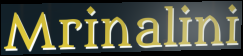
Mrinalini